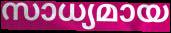
സാധ്യമായ